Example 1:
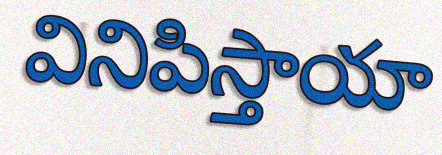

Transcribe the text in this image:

వినిపిస్తాయా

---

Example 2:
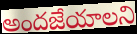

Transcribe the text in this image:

అందజేయాలని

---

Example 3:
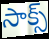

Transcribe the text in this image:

సాక్స్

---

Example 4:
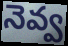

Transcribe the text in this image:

నెవ్వ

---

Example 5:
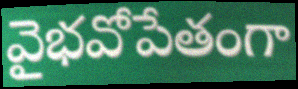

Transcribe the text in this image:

వైభవోపేతంగా